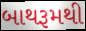
બાથરૂમથી